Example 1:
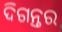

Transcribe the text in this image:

ଦିଗନ୍ତର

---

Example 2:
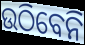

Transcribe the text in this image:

ଉଠିବେନି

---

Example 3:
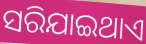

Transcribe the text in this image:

ସରିଯାଇଥାଏ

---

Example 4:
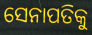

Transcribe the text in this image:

ସେନାପତିକୁ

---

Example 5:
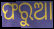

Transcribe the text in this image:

ଫରୁଆ